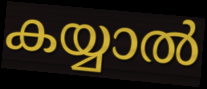
കയ്യാൽ